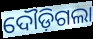
ଦୌଡ଼ିଗଲା